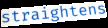
straightens